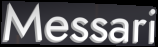
Messari